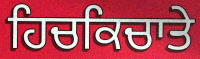
ਹਿਚਕਿਚਾਤੇ